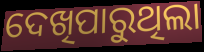
ଦେଖିପାରୁଥିଲା